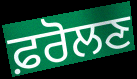
ਫ਼ਰੋਲਣ